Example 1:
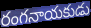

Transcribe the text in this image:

రంగనాయకుడు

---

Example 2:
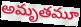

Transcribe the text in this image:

అమృతమూ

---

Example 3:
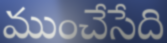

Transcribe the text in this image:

ముంచేసేది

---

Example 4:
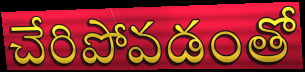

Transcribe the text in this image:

చేరిపోవడంతో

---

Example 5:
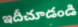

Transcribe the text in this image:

ఇదీచూడండి